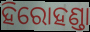
ହିରୋହଣ୍ଡା